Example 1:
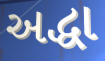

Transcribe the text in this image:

અદ્ધા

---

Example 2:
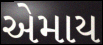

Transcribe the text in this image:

એમાય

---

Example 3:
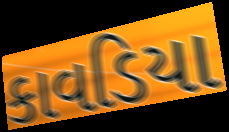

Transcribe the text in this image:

કાવડિયા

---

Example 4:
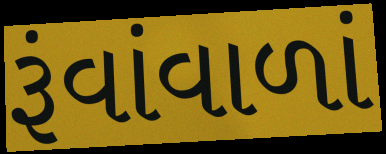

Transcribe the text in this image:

રૂંવાંવાળાં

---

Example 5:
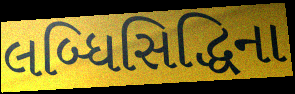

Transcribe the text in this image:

લબ્ધિસિદ્ધિના